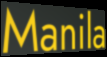
Manila